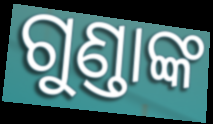
ଗୁଣ୍ଡାଙ୍କ